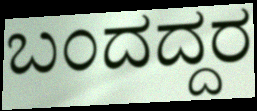
ಬಂದದ್ದರ